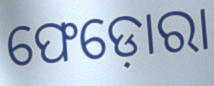
ଫେଡ଼ୋରା